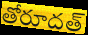
తోరూదత్